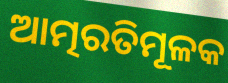
ଆତ୍ମରତିମୂଳକ